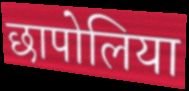
छापोलिया